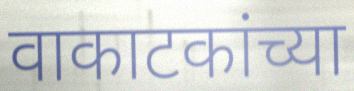
वाकाटकांच्या